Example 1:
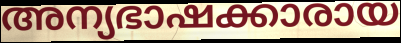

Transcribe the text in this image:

അന്യഭാഷക്കാരായ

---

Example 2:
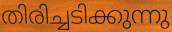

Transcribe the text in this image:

തിരിച്ചടിക്കുന്നു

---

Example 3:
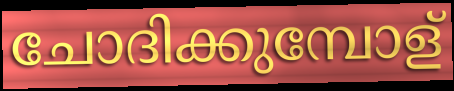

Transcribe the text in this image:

ചോദിക്കുമ്പോള്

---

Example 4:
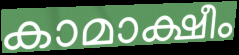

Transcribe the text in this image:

കാമാക്ഷീം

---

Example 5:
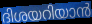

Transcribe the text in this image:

ദിശയറിയാൻ